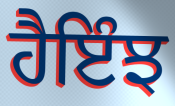
ਹੈਇੰਝ